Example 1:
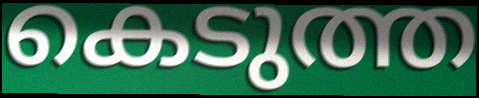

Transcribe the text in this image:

കെടുത്ത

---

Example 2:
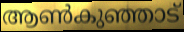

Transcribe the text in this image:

ആൺകുഞ്ഞാട്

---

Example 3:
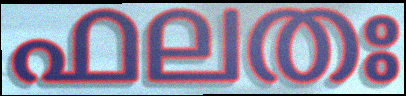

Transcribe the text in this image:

ഫലതഃ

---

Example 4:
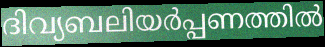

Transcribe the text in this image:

ദിവ്യബലിയർപ്പണത്തിൽ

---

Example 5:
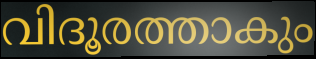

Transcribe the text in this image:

വിദൂരത്താകും